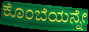
ಕೊಂಬೆಯನ್ನೇ